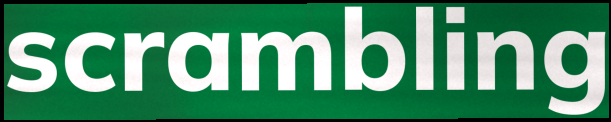
scrambling